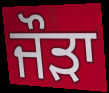
ਜੌੜਾ